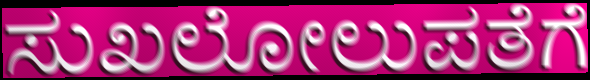
ಸುಖಲೋಲುಪತೆಗೆ